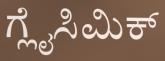
ಗ್ಲೈಸಿಮಿಕ್